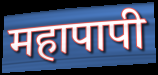
महापापी